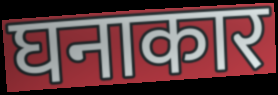
घनाकार